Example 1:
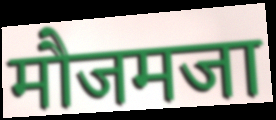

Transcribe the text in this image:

मौजमजा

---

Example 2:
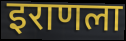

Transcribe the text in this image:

इराणला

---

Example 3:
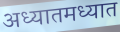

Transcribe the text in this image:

अध्यातमध्यात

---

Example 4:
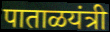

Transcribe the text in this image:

पाताळयंत्री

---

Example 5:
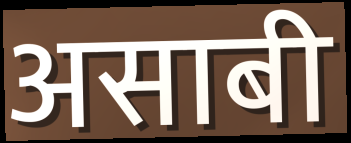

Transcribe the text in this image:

असाबी